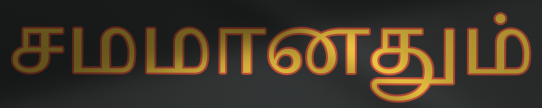
சமமானதும்